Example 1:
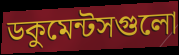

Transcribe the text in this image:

ডকুমেন্টসগুলো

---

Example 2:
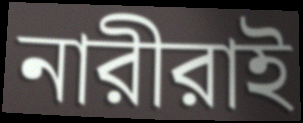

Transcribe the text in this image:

নারীরাই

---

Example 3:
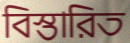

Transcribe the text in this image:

বিস্তারিত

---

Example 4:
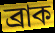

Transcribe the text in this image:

ব্রাক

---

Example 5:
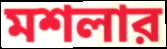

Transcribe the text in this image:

মশলার